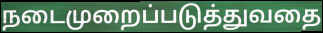
நடைமுறைப்படுத்துவதை